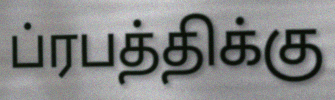
ப்ரபத்திக்கு